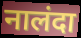
नालंदा